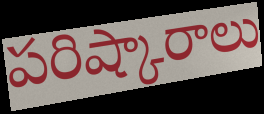
పరిష్కారాలు